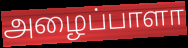
அழைப்பாளா